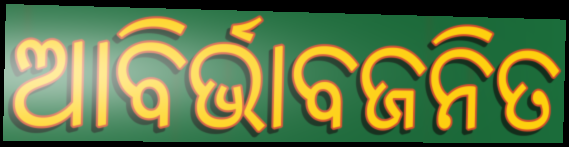
ଆବିର୍ଭାବଜନିତ